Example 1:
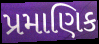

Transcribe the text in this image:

પ્રમાણિક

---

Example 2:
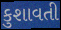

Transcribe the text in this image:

કુશાવતી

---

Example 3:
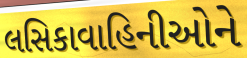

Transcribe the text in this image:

લસિકાવાહિનીઓને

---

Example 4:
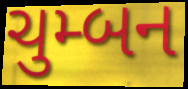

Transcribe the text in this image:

ચુમ્બન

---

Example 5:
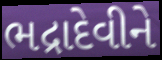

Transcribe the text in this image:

ભદ્રાદેવીને